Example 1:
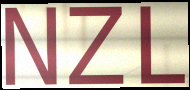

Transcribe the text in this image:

NZL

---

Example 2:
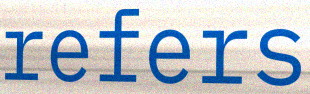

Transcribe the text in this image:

refers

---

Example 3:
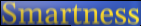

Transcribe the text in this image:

Smartness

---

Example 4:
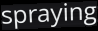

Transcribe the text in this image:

spraying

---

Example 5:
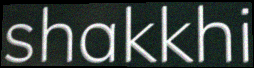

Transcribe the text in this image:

shakkhi